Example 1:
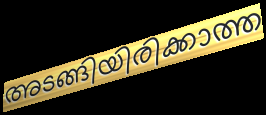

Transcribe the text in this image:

അടങ്ങിയിരിക്കാത്ത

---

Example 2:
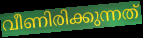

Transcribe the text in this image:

വീണിരിക്കുന്നത്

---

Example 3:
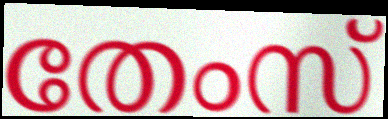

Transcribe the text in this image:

തേംസ്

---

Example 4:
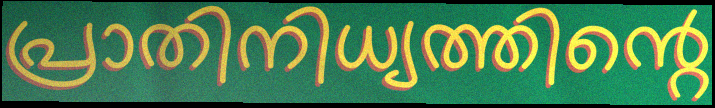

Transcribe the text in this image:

പ്രാതിനിധ്യത്തിന്റെ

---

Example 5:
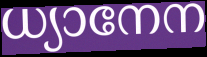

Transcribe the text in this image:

ധ്യാനേന